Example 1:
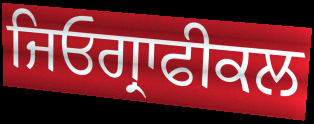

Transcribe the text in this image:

ਜਿਓਗ੍ਰਾਫੀਕਲ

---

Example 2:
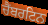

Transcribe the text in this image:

ਚੈਂਬਰਟਿਨ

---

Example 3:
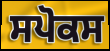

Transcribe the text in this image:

ਸਪੋਕਸ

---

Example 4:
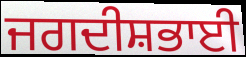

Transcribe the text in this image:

ਜਗਦੀਸ਼ਭਾਈ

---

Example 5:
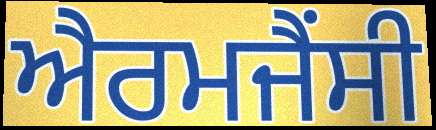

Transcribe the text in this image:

ਐਰਮਜੈਂਸੀ